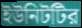
ইউনিটটির